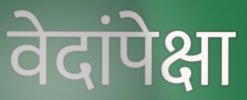
वेदांपेक्षा